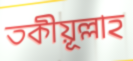
তকীয়ূল্লাহ